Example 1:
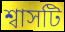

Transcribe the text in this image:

শ্বাসটি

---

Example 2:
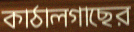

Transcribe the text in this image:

কাঠালগাছের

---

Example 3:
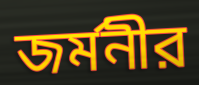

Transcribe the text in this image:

জর্মনীর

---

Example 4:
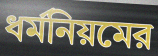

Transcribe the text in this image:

ধর্মনিয়মের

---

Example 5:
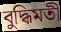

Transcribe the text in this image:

বুদ্ধিমতী